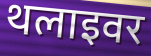
थलाइवर